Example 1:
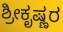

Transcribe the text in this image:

ಶ್ರೀಕೃಷ್ಣರ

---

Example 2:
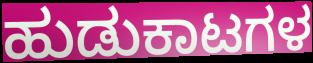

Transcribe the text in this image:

ಹುಡುಕಾಟಗಳ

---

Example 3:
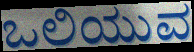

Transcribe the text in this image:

ಒಲಿಯುವ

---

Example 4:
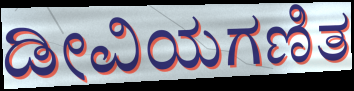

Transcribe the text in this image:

ಡೀವಿಯಗಣಿತ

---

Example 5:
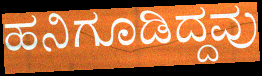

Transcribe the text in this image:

ಹನಿಗೂಡಿದ್ದವು